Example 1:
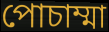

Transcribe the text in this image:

পোচাম্মা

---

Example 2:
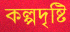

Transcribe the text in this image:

কল্পদৃষ্টি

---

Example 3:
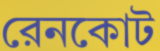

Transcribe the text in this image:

রেনকোট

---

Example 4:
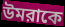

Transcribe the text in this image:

উমরাকে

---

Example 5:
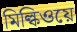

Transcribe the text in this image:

মিল্কিওয়ে